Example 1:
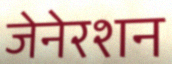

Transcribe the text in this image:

जेनेरशन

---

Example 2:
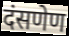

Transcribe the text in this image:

दंसणेण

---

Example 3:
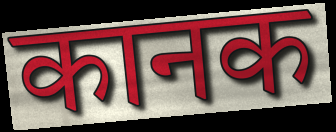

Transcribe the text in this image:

कानक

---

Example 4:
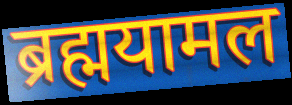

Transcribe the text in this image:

ब्रह्मयामल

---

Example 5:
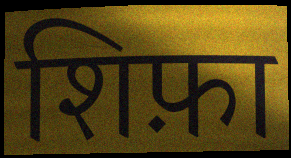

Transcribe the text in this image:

शिफ़ा